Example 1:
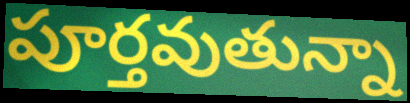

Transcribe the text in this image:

పూర్తవుతున్నా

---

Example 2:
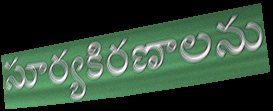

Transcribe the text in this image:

సూర్యకిరణాలను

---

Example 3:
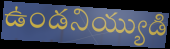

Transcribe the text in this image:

ఉండనియ్యుడి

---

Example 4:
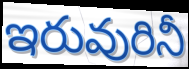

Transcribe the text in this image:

ఇరువురినీ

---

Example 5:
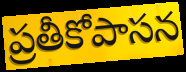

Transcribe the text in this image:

ప్రతీకోపాసన